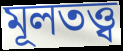
মূলতত্ত্ব